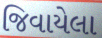
જિવાયેલા